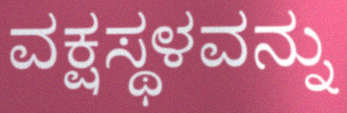
ವಕ್ಷಸ್ಥಳವನ್ನು